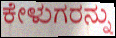
ಕೇಳುಗರನ್ನು